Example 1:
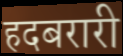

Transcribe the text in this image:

हदबरारी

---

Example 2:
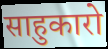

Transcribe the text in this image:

साहुकारो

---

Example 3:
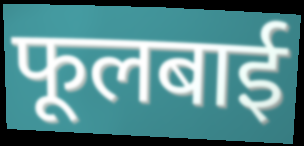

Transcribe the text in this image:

फूलबाई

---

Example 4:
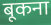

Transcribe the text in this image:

बूकना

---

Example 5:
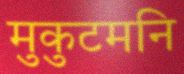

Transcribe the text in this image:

मुकुटमनि